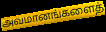
அவமானங்களைத்